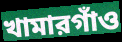
খামারগাঁও